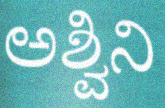
ಅಶ್ವಿನಿ